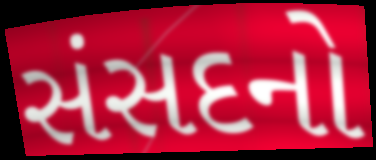
સંસદનો